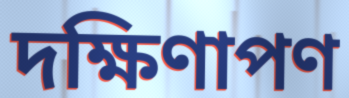
দক্ষিণাপণ